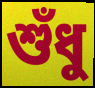
শুঁধু